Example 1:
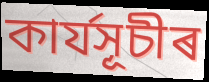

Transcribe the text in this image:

কাৰ্যসূচীৰ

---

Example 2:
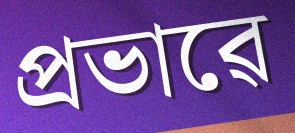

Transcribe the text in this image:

প্ৰভাৱে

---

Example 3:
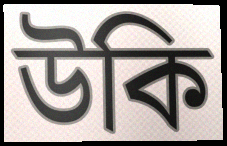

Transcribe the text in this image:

উকি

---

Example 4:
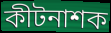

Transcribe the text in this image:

কীটনাশক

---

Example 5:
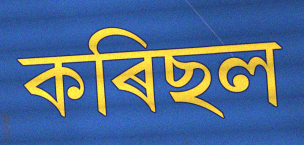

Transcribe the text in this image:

কৰিছল